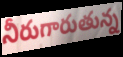
నీరుగారుతున్న